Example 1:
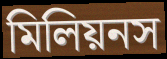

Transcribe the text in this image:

মিলিয়নস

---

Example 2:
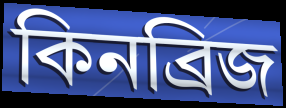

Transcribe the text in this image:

কিনব্রিজ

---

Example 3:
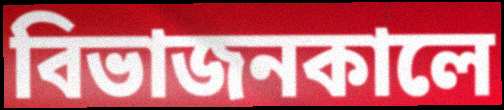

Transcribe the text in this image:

বিভাজনকালে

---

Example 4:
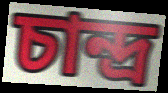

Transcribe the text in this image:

চান্দ্র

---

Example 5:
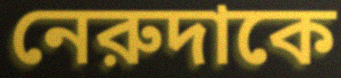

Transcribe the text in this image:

নেরুদাকে